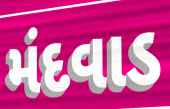
મંદવાડ